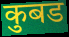
कुबड